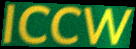
ICCW